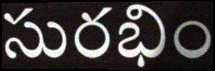
సురభిం